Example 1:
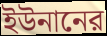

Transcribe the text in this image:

ইউনানের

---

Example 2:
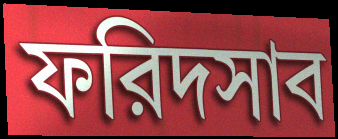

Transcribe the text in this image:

ফরিদসাব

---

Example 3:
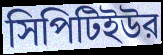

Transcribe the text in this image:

সিপিটিইউর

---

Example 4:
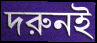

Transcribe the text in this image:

দরুনই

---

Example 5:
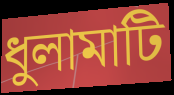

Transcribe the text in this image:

ধুলামাটি